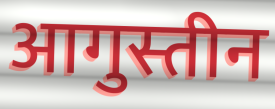
आगुस्तीन